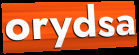
orydsa